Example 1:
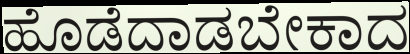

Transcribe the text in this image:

ಹೊಡೆದಾಡಬೇಕಾದ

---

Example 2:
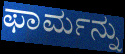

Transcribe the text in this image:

ಫಾರ್ಮನ್ನು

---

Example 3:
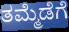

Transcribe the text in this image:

ತಮ್ಮೆಡೆಗೆ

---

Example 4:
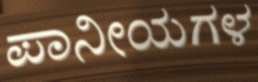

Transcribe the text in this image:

ಪಾನೀಯಗಳ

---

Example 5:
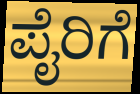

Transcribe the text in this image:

ಪೈರಿಗೆ